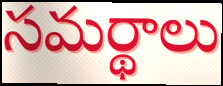
సమర్థాలు